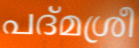
പദ്മശ്രീ